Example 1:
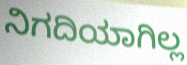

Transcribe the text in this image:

ನಿಗದಿಯಾಗಿಲ್ಲ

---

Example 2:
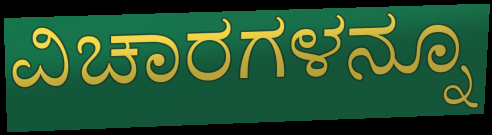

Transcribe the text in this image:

ವಿಚಾರಗಳನ್ನೂ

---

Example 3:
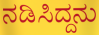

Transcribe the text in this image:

ನಡಿಸಿದ್ದನು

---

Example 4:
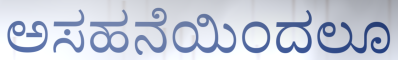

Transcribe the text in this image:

ಅಸಹನೆಯಿಂದಲೂ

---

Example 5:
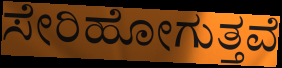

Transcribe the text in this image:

ಸೇರಿಹೋಗುತ್ತವೆ